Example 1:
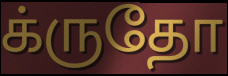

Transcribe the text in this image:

க்ருதோ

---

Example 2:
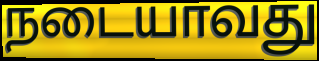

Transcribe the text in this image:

நடையாவது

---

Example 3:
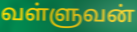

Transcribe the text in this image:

வள்ளுவன்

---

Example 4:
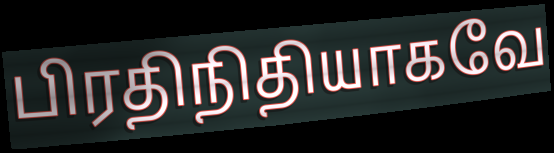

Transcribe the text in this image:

பிரதிநிதியாகவே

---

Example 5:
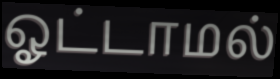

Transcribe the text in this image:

ஓட்டாமல்